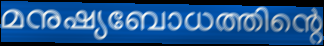
മനുഷ്യബോധത്തിന്റെ